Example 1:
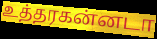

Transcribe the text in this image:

உத்தரகன்னடா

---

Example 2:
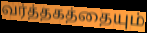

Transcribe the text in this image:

வர்த்தகத்தையும்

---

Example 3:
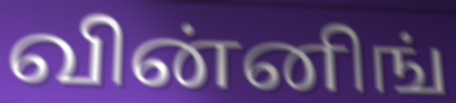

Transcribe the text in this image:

வின்னிங்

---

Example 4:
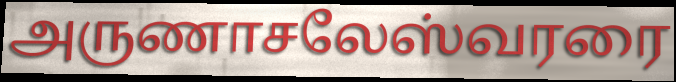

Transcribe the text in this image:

அருணாசலேஸ்வரரை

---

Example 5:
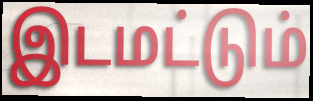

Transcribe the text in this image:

இடமட்டும்